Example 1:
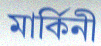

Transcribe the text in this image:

মার্কিনী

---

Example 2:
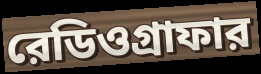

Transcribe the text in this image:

রেডিওগ্রাফার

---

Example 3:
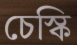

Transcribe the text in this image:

চেস্কি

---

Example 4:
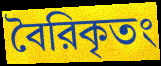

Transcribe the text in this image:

বৈরিকৃতং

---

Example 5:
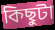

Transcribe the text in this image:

কিছুটা